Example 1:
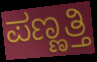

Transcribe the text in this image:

ಪಣ್ಣತ್ತಿ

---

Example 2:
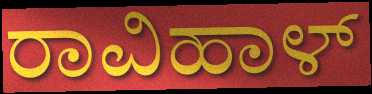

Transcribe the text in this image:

ರಾವಿಹಾಳ್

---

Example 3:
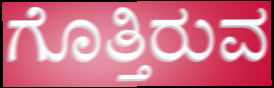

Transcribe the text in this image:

ಗೊತ್ತಿರುವ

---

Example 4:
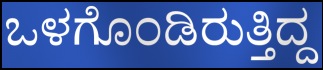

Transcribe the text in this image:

ಒಳಗೊಂಡಿರುತ್ತಿದ್ದ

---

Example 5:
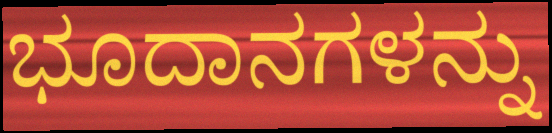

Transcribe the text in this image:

ಭೂದಾನಗಳನ್ನು